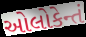
ઓલોકેન્તં